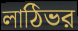
লাঠিভর